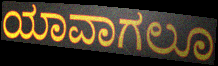
ಯಾವಾಗಲೂ